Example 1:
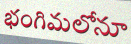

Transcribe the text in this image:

భంగిమలోనూ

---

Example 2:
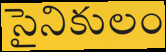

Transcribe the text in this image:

సైనికులం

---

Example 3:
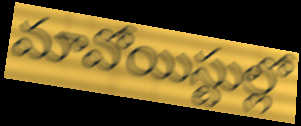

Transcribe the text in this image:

మావోయిస్టుల్లో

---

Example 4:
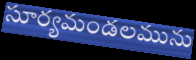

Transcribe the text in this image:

సూర్యమండలమును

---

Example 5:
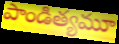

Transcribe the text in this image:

పాండిత్యమూ